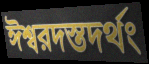
ঈশ্বরদস্তদর্থং